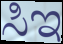
ಸಿಇ